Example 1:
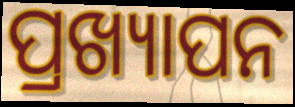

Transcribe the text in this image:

ପ୍ରଖ୍ୟାପନ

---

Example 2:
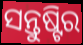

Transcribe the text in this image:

ସନ୍ତୁଷ୍ଟିର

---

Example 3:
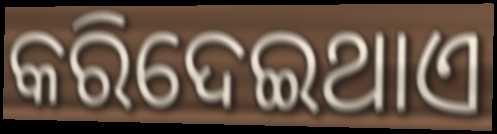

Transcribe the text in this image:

କରିଦେଇଥାଏ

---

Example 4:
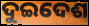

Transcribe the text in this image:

ଦୁଇଦେଶ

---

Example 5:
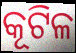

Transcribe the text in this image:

କୂଟିଳ